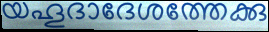
യഹൂദാദേശത്തേക്കു